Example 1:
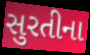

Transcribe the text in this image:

સુરતીના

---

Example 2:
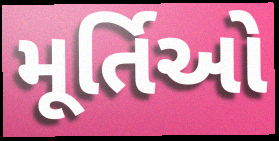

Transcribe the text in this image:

મૂર્તિઓ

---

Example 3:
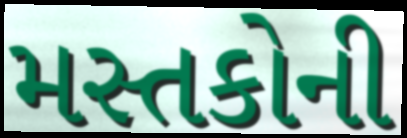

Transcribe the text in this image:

મસ્તકોની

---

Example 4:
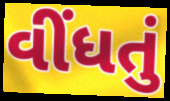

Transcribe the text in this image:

વીંધતું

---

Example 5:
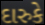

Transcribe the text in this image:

દારુકે